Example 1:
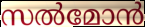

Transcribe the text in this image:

സൽമോൻ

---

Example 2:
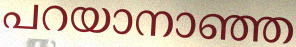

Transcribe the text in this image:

പറയാനാഞ്ഞ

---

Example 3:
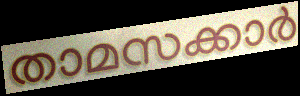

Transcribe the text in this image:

താമസക്കാർ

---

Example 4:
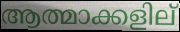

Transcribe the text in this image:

ആത്മാക്കളില്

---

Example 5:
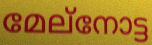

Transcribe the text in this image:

മേല്നോട്ട